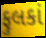
ફુલકાં